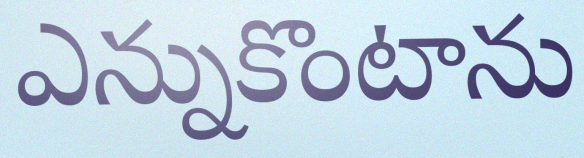
ఎన్నుకొంటాను